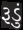
રૂડું